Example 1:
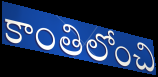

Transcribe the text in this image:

కాంతిలోంచి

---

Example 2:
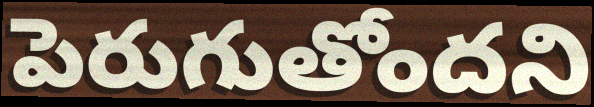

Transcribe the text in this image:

పెరుగుతోందని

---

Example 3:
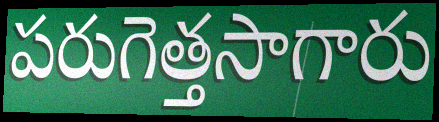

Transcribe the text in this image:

పరుగెత్తసాగారు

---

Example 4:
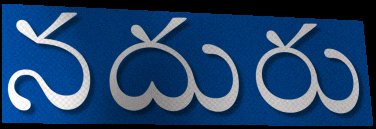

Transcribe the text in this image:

నదురు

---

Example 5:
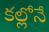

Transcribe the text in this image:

కల్లోనే